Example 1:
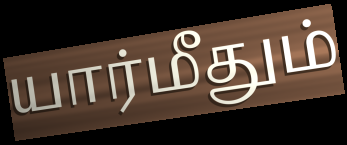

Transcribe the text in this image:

யார்மீதும்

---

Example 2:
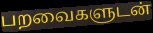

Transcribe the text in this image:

பறவைகளுடன்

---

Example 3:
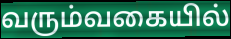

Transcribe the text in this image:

வரும்வகையில்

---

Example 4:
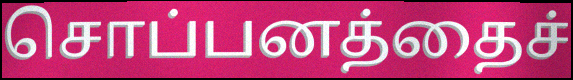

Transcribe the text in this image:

சொப்பனத்தைச்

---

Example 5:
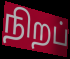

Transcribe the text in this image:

நிறப்